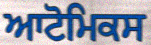
ਆਟੋਮਿਕਸ